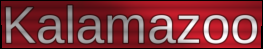
Kalamazoo